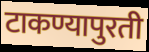
टाकण्यापुरती